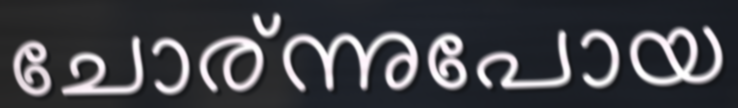
ചോര്ന്നുപോയ